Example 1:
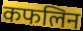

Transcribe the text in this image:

कफलिन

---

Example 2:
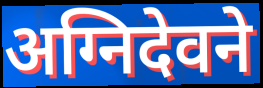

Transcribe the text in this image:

अग्निदेवने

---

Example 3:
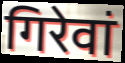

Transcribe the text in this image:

गिरेवां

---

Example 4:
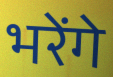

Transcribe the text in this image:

भरेंगे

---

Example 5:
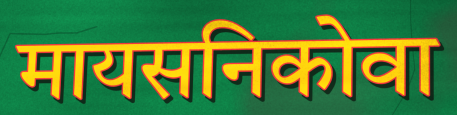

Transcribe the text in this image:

मायसनिकोवा